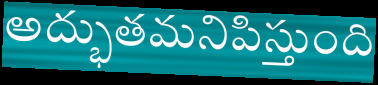
అద్భుతమనిపిస్తుంది